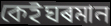
কেইঘৰমান